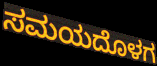
ಸಮಯದೊಳಗ